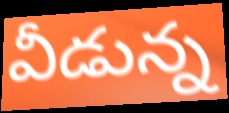
వీడున్న